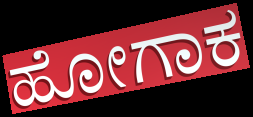
ಹೋಗಾಕ